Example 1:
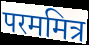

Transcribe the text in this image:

परममित्र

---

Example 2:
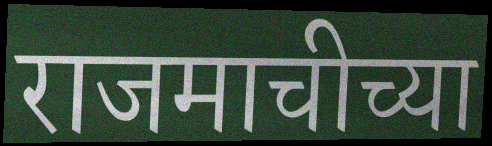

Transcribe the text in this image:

राजमाचीच्या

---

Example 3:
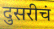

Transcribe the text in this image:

दुसरीचं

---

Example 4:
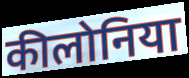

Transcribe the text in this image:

कीलोनिया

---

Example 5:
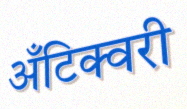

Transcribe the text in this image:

अँटिक्वरी